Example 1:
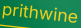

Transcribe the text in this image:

prithwine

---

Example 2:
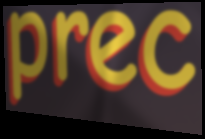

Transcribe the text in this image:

prec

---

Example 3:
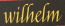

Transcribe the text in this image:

wilhelm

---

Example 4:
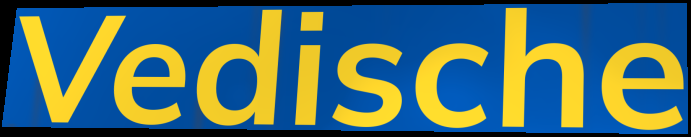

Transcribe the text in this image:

Vedische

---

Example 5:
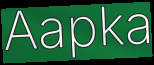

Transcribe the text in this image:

Aapka